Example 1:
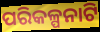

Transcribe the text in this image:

ପରିକଳ୍ପନାଟି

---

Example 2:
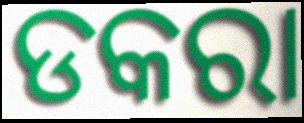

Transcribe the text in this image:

ଡକରା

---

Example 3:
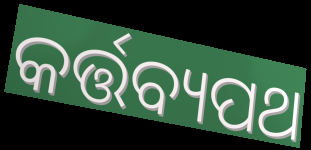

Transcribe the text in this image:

କର୍ତ୍ତବ୍ୟପଥ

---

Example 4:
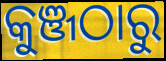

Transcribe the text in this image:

କୁଞ୍ଜଠାରୁ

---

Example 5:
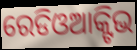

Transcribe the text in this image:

ରେଡିଓଆକ୍ଟିଭ